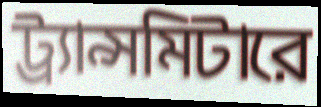
ট্র্যান্সমিটারে